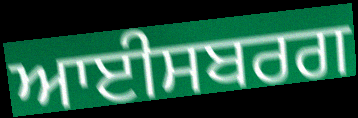
ਆਈਸਬਰਗ